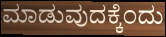
ಮಾಡುವುದಕ್ಕೆಂದು